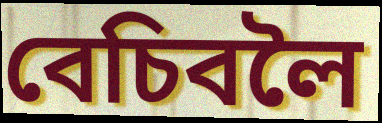
বেচিবলৈ